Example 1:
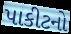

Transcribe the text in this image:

પાકીટનો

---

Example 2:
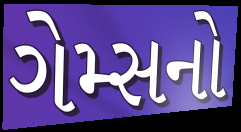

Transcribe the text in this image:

ગેમ્સનો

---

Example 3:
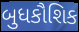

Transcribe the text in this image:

બુધકૌશિક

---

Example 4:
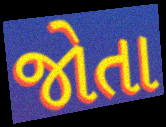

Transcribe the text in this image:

જોતા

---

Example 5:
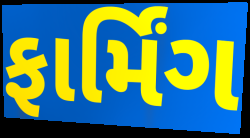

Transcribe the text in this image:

ફાર્મિંગ